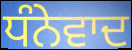
ਧੰਨੇਵਾਦ